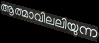
ആത്മാവിലലിയുന്ന